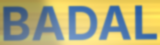
BADAL